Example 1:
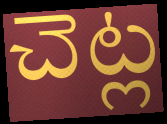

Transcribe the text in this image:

చెట్ల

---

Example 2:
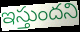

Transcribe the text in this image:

ఇస్తుందని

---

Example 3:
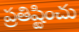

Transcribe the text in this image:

ప్రతిష్టించు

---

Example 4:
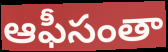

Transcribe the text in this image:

ఆఫీసంతా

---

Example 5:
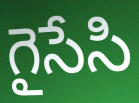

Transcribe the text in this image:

గైసేసి